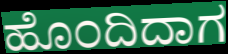
ಹೊಂದಿದಾಗ